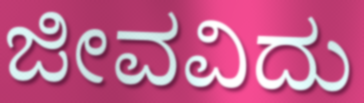
ಜೀವವಿದು